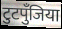
टुटपुँजिया